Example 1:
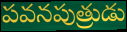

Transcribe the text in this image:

పవనపుత్రుడు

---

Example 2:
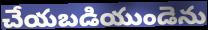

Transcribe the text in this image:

చేయబడియుండెను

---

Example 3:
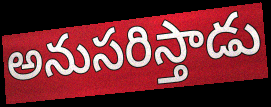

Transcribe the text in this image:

అనుసరిస్తాడు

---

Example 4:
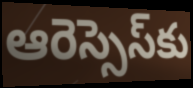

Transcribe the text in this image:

ఆరెస్సెస్‌కు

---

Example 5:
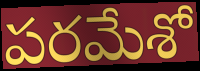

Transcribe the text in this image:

పరమేశో